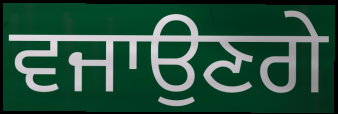
ਵਜਾਉਣਗੇ